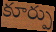
కూర్పు